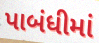
પાબંધીમાં